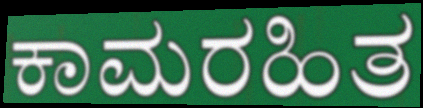
ಕಾಮರಹಿತ